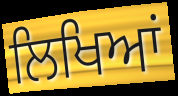
ਲਿਖਿਆਂ